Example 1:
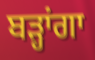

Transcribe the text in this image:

ਬੜ੍ਹਾਂਗਾ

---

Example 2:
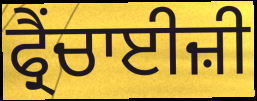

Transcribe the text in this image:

ਫ੍ਰੈਂਚਾਈਜ਼ੀ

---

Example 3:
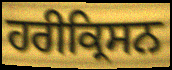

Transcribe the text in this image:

ਹਰੀਕ੍ਰਿਸਨ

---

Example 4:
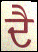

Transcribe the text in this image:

ਦੈ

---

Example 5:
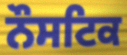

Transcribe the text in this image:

ਨੌਸਟਿਕ